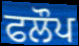
ਫਲੌਪ